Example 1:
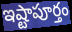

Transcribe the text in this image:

ఇష్టాపూర్తం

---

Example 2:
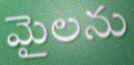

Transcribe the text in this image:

మైలను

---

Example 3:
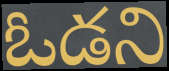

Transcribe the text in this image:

ఓడని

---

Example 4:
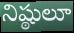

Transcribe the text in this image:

నిష్ఠులూ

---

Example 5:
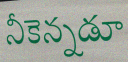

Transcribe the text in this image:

నీకెన్నడూ